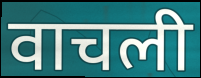
वाचली